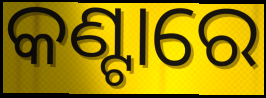
କଣ୍ଟାରେ